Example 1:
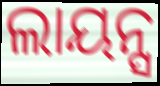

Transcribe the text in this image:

ଲାୟନ୍ସ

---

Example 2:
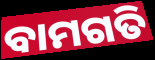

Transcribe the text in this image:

ବାମଗତି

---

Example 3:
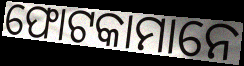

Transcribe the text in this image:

ଫୋଟକାମାନେ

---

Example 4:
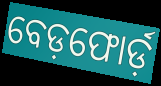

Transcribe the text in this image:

ବେଡ଼ଫୋର୍ଡ଼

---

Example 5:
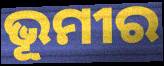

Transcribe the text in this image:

ଭୂମୀର